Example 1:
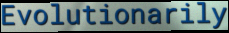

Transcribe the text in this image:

Evolutionarily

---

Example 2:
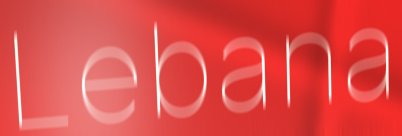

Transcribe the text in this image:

Lebana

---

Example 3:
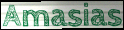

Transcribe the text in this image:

Amasias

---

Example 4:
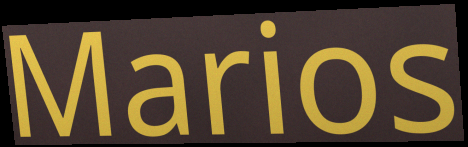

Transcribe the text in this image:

Marios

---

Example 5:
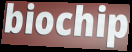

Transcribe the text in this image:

biochip